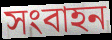
সংবাহন